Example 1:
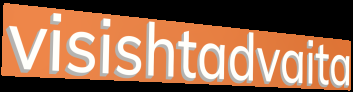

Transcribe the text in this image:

visishtadvaita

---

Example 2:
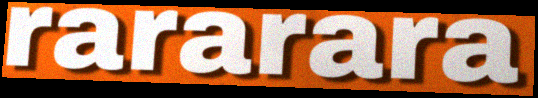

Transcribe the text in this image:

rararara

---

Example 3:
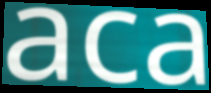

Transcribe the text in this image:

aca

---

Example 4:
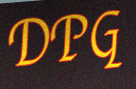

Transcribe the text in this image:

DPG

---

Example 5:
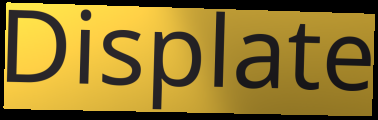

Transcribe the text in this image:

Displate